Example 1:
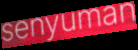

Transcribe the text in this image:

senyuman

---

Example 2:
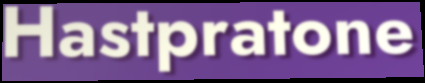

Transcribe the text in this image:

Hastpratone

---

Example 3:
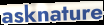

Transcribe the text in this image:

asknature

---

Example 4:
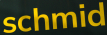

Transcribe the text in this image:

schmid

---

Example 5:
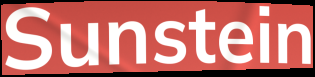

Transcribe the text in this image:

Sunstein